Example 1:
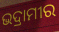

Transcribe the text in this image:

ଭଦ୍ରାମୀର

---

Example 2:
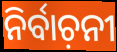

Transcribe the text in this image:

ନିର୍ବାଚ଼ନୀ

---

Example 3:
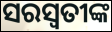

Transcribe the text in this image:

ସରସ୍ବତୀଙ୍କ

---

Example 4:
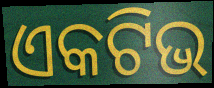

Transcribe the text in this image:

ଏକଟିଭ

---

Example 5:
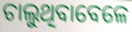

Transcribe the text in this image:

ଚାଲୁଥିବାବେଳେ